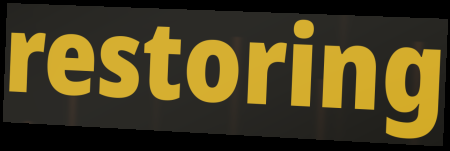
restoring